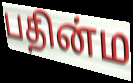
பதின்ம